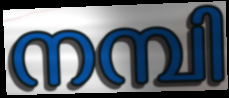
നമ്പി